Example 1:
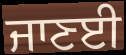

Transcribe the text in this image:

ਜਾਣਈ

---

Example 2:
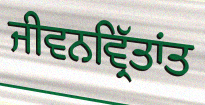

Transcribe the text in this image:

ਜੀਵਨਵ੍ਰਿੱਤਾਂਤ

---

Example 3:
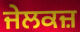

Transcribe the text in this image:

ਜੇਲਕਜ਼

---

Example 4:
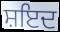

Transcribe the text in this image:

ਸ਼ਇਦ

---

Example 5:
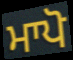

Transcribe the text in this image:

ਮਾਪੋ